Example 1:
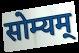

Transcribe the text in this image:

सोम्यम्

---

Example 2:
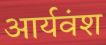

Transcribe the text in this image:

आर्यवंश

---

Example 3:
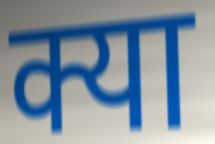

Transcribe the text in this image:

क्या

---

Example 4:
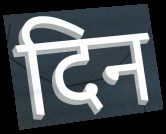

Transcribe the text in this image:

दिन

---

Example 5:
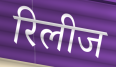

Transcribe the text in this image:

रिलीज